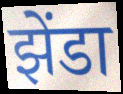
झेंडा